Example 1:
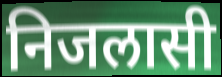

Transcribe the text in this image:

निजलासी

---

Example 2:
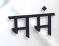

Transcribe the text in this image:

ममं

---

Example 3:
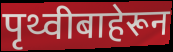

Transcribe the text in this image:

पृथ्वीबाहेरून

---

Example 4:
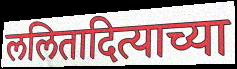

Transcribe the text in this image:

ललितादित्याच्या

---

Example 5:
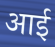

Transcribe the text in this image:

आई